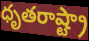
ధృతరాష్ట్రా